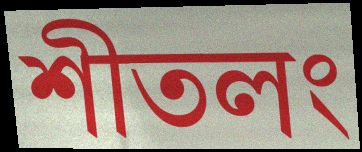
শীতলং